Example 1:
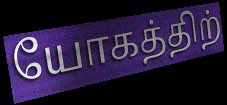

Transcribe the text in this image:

யோகத்திற்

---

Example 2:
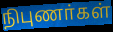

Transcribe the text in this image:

நிபுணர்கள்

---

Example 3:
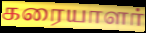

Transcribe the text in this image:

கரையாளர்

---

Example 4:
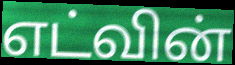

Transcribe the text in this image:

எட்வின்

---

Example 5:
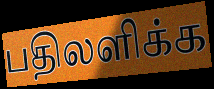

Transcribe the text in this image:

பதிலளிக்க